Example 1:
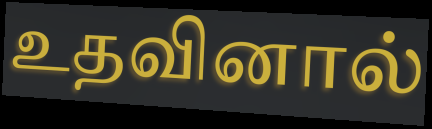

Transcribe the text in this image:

உதவினால்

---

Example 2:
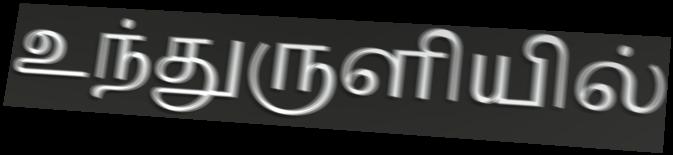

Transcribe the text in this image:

உந்துருளியில்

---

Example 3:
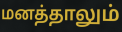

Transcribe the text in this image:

மனத்தாலும்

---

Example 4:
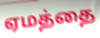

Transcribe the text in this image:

ஏமத்தை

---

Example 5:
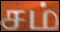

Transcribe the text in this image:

சம்